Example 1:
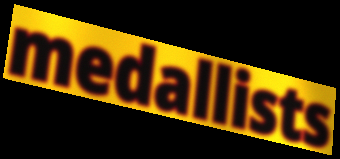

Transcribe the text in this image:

medallists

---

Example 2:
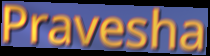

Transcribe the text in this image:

Pravesha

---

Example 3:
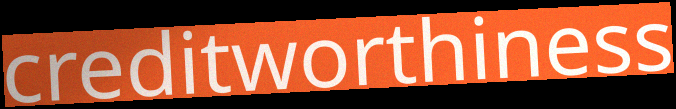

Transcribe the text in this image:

creditworthiness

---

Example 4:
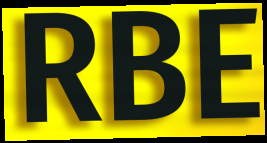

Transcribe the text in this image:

RBE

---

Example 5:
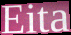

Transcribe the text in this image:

Eita